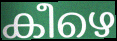
കീഴെ